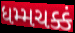
ધમ્મચક્કં